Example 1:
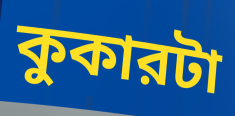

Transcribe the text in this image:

কুকারটা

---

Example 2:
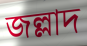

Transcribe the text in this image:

জল্লাদ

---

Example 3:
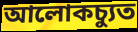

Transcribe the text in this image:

আলোকচ্যুত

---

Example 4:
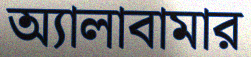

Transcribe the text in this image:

অ্যালাবামার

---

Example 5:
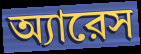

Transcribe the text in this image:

অ্যারেস